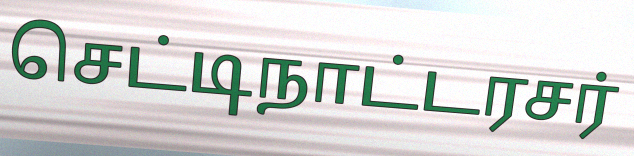
செட்டிநாட்டரசர்